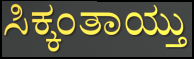
ಸಿಕ್ಕಂತಾಯ್ತು